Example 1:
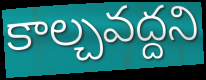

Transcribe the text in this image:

కాల్చవద్దని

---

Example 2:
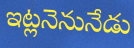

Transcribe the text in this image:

ఇట్లనెనునేడు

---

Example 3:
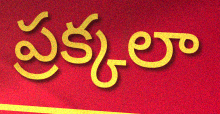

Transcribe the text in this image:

ప్రక్కలా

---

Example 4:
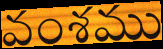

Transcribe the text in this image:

వంశము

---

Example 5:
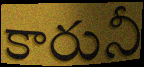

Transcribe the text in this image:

కారునీ